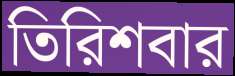
তিরিশবার